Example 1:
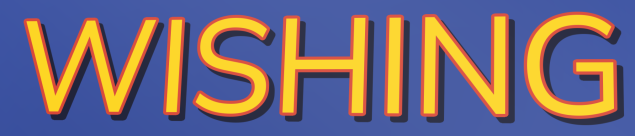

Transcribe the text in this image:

WISHING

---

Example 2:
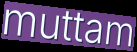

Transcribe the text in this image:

muttam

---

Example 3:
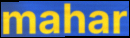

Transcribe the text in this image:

mahar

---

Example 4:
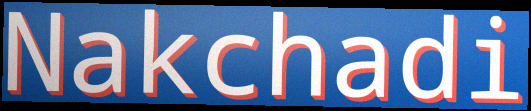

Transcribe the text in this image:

Nakchadi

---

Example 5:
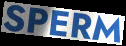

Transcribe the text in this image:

SPERM